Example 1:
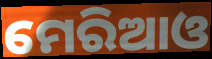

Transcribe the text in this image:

ମେରିଆଓ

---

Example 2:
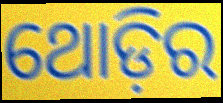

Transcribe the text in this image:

ଥୋଡ଼ିର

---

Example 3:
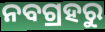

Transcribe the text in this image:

ନବଗ୍ରହରୁ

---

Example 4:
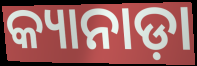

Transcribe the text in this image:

କ୍ୟାନାଡ଼ା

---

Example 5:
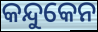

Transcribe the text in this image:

କନ୍ଦୁକେନ